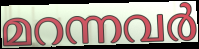
മറന്നവർ